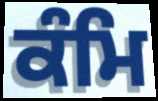
ਕੰਮਿ